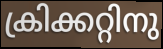
ക്രിക്കറ്റിനു